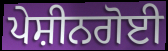
ਪੇਸ਼ੀਨਗੋਈ